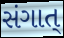
સંગાત્